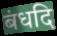
बंधदि